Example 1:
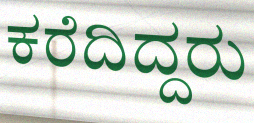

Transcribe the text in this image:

ಕರೆದಿದ್ದರು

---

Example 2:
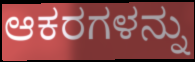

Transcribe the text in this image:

ಆಕರಗಳನ್ನು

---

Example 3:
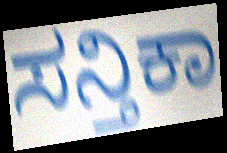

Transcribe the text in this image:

ಸನ್ತಿಕಾ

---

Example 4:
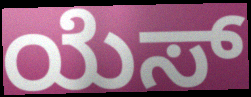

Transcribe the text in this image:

ಯೆಸ್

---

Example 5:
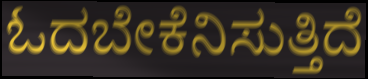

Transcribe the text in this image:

ಓದಬೇಕೆನಿಸುತ್ತಿದೆ